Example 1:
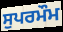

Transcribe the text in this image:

ਸੁਪਰਮੌਮ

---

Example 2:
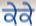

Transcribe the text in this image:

ਕੇਕੇ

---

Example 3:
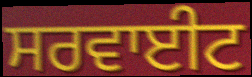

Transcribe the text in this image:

ਸਰਵਾਈਟ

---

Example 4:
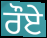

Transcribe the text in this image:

ਰੌਏ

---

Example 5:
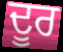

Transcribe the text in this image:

ਦੂਰ